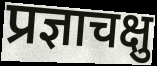
प्रज्ञाचक्षु